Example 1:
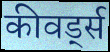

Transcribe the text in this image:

कीवर्ड्स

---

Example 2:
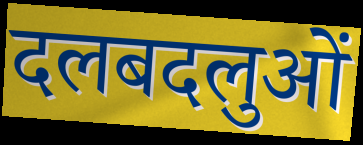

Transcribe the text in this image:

दलबदलुओं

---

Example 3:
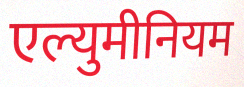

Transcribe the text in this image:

एल्युमीनियम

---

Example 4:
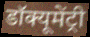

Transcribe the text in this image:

डॉक्‍यूमेंट्री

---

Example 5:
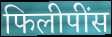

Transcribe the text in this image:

फिलीपींस